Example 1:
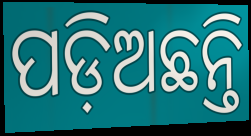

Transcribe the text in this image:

ପଡ଼ିଅଛନ୍ତି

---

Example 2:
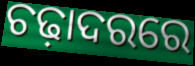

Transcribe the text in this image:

ଚଢ଼ାଦରରେ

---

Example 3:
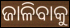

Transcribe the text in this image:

ଜାଳିବାକୁ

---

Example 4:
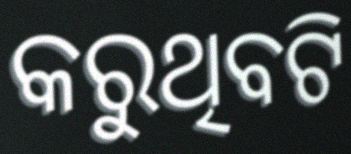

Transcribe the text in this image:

କରୁଥିବଟି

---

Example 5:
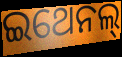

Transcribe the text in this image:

ଇଥେନଲ୍